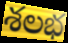
శలభ